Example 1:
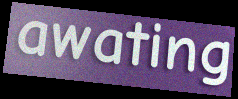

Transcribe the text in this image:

awating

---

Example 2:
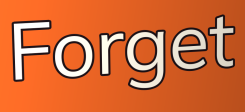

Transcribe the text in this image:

Forget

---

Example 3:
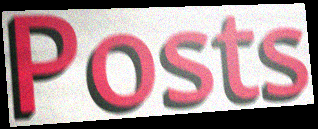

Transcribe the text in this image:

Posts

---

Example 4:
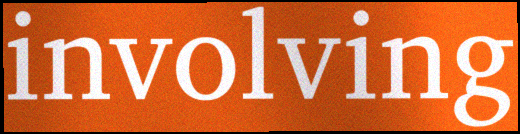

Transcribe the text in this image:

involving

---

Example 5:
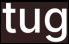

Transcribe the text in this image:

tug